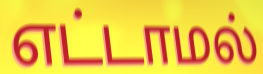
எட்டாமல்